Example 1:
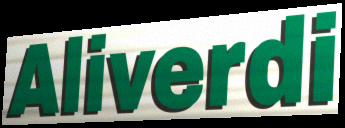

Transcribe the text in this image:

Aliverdi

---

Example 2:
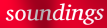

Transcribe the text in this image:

soundings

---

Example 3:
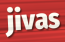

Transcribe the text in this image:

jivas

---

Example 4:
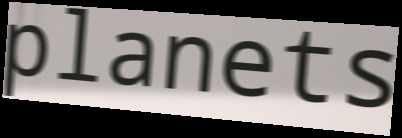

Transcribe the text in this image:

planets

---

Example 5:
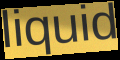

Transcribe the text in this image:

liquid